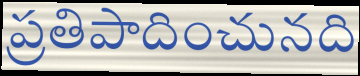
ప్రతిపాదించునది